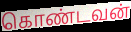
கொண்டவன்